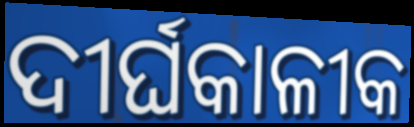
ଦୀର୍ଘକାଳୀକ